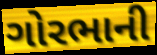
ગોરભાની